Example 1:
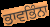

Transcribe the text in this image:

ਭਾਵਭਿੰਨਾ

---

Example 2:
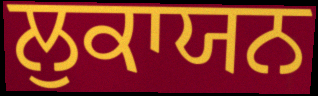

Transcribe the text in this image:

ਲੁਕਾਯਨ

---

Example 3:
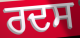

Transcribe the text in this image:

ਰਦਸ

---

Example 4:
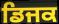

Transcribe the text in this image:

ਡਿਜਕ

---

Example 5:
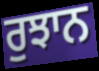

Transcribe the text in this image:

ਰੁਝਾਨ